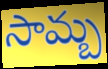
సామ్బ